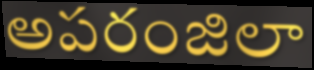
అపరంజిలా